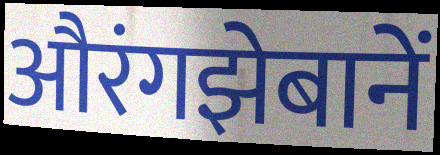
औरंगझेबानें